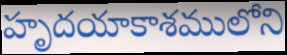
హృదయాకాశములోని